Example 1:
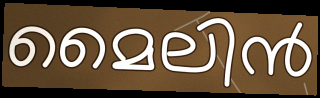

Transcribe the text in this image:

മൈലിൻ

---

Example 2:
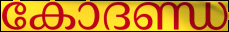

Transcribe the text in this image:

കോദണ്ഡ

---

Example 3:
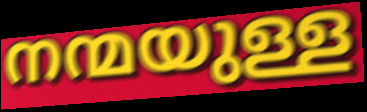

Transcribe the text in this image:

നന്മയുള്ള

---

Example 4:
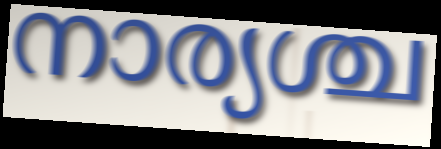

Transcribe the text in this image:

നാര്യശ്ച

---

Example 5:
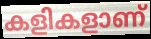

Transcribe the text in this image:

കളികളാണ്